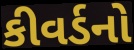
કીવર્ડનો